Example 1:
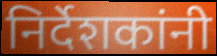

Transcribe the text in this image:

निर्देशकांनी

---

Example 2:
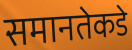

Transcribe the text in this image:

समानतेकडे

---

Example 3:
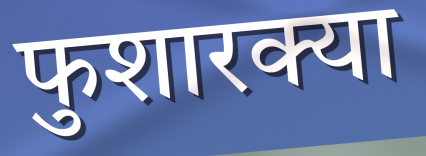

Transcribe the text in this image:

फुशारक्‍या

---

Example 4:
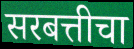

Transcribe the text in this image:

सरबत्तीचा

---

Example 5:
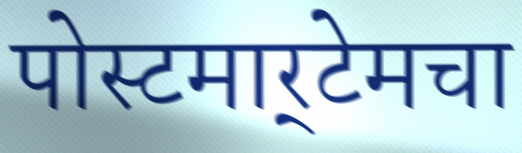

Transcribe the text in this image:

पोस्टमार्टेमचा